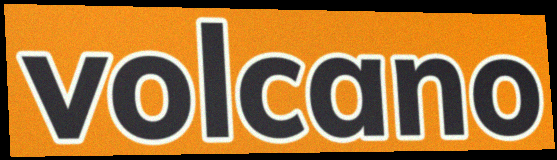
volcano